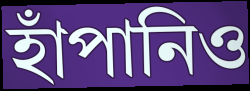
হাঁপানিও